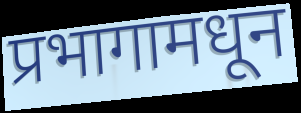
प्रभागामधून